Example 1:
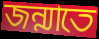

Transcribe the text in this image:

জন্মাতে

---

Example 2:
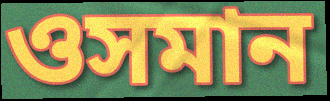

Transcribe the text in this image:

ওসমান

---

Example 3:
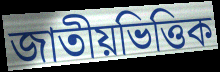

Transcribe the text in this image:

জাতীয়ভিত্তিক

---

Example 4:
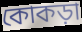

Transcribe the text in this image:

কোকড়া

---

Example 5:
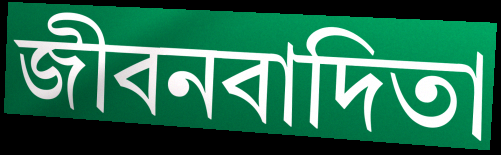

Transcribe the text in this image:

জীবনবাদিতা